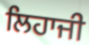
ਲਿਹਾਜੀ